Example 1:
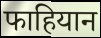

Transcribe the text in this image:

फाहियान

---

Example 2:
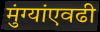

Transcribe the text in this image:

मुंग्यांएवढी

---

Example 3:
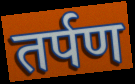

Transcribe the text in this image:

तर्पण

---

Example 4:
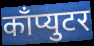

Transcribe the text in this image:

काँप्युटर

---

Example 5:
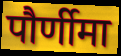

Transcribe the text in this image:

पौर्णीमा